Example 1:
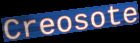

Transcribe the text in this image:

Creosote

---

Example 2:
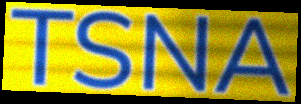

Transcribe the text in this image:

TSNA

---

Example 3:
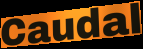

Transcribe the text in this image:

Caudal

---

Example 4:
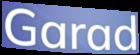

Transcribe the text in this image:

Garad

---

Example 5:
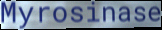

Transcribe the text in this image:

Myrosinase